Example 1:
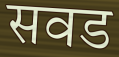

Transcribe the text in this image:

सवड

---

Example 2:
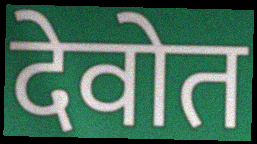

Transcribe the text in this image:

देवोत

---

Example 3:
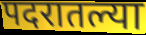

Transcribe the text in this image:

पदरातल्या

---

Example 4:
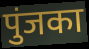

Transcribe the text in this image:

पुंजका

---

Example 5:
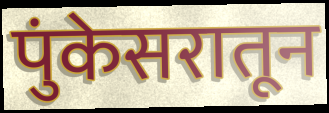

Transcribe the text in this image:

पुंकेसरातून